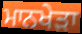
ਮਾਨਖੇੜਾ